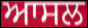
ਆਸਲ